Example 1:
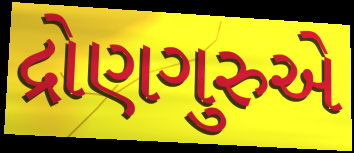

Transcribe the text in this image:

દ્રોણગુરુએ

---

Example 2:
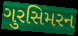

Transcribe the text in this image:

ગુરસિમરન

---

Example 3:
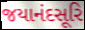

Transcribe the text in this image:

જયાનંદસૂરિ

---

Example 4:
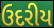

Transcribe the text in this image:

ઉદરીય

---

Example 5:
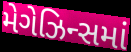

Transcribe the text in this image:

મેગેઝિન્સમાં